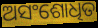
ଅସଂଶୋଧିତ